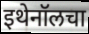
इथेनॉलचा